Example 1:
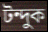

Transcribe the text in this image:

টন্দুক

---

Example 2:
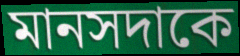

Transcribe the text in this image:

মানসদাকে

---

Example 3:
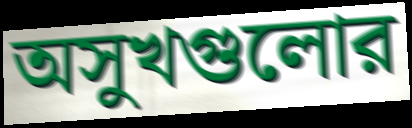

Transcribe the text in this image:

অসুখগুলোর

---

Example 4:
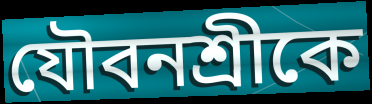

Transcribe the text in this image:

যৌবনশ্রীকে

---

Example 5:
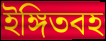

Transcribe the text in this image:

ইঙ্গিতবহ